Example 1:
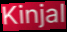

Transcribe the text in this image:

Kinjal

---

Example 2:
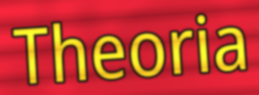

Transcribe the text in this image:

Theoria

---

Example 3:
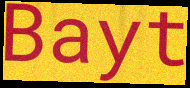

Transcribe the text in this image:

Bayt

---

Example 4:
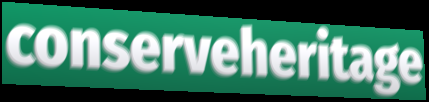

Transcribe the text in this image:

conserveheritage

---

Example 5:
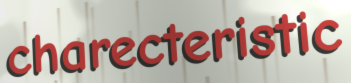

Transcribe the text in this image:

charecteristic